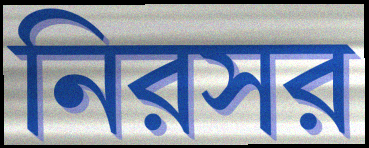
নিরসর